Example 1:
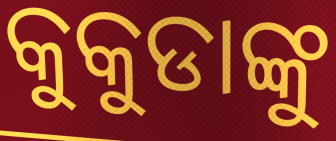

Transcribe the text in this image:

କୁକୁଡାଙ୍କୁ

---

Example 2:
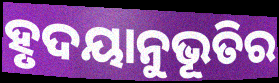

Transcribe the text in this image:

ହୃଦୟାନୁଭୂତିର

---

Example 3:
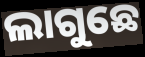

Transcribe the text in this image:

ଲାଗୁଛେ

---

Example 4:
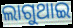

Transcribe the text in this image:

ଲାଗୁଥାଇ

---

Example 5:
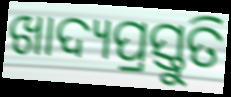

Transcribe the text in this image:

ଖାଦ୍ୟପ୍ରସ୍ତୁତି